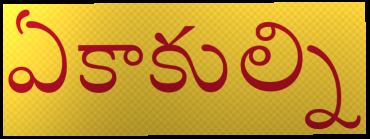
ఏకాకుల్ని